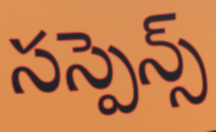
సస్పెన్స్